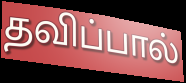
தவிப்பால்